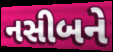
નસીબને